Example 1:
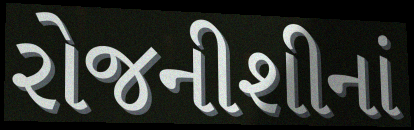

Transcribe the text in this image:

રોજનીશીનાં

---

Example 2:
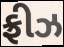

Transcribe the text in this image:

ફ્રીઝ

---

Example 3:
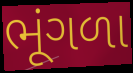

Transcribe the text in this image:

ભૂંગળા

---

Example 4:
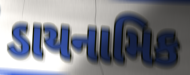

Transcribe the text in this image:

ડાયનામિક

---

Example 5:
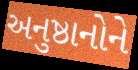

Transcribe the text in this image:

અનુષ્ઠાનોને